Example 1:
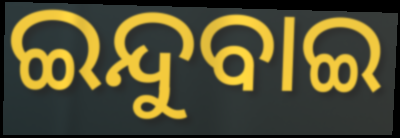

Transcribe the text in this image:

ଇନ୍ଦୁବାଇ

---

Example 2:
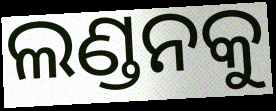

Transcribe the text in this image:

ଲଣ୍ଡନକୁ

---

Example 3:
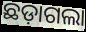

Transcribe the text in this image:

ଛଡ଼ାଗଲା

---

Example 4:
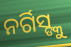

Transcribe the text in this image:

ନର୍ଗିସ୍ଙ୍କୁ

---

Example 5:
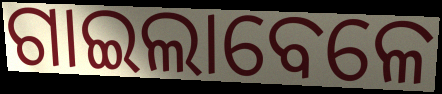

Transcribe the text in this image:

ଗାଇଲାବେଳେ